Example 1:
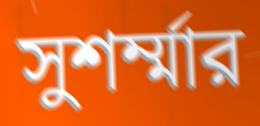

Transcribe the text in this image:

সুশর্ম্মার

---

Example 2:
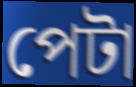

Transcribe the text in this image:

পেটা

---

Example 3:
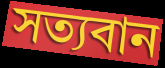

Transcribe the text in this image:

সত্যবান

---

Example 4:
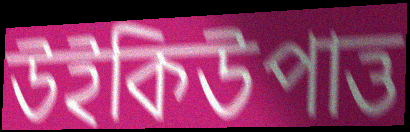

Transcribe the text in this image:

উইকিউপাত্ত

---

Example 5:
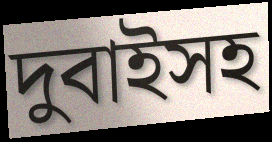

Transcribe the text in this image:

দুবাইসহ